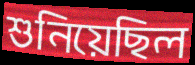
শুনিয়েছিল